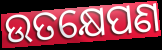
ଉତକ୍ଷେପଣ